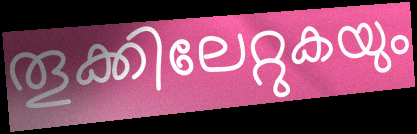
തൂക്കിലേറ്റുകയും